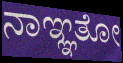
ನಾಞ್ಞತೋ